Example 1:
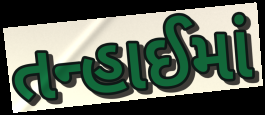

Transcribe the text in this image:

તન્હાઈમાં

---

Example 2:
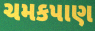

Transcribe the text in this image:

ચમકપાણ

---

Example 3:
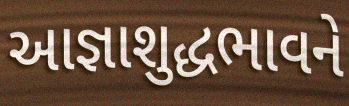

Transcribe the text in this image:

આજ્ઞાશુદ્ધભાવને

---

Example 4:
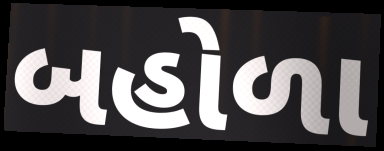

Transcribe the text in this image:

બહોળા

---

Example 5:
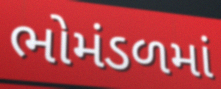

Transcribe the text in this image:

ભોમંડળમાં